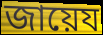
জায়েয